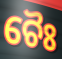
ଚୈଃ